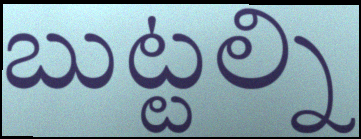
బుట్టల్ని